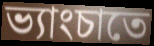
ভ্যাংচাতে